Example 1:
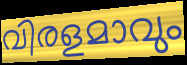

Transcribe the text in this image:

വിരളമാവും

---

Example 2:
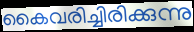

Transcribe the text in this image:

കൈവരിച്ചിരിക്കുന്നു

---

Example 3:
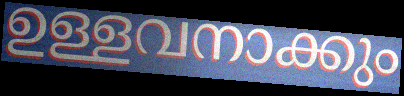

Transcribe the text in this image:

ഉള്ളവനാക്കും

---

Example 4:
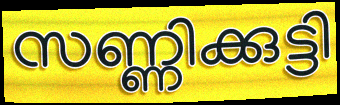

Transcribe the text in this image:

സണ്ണിക്കുട്ടി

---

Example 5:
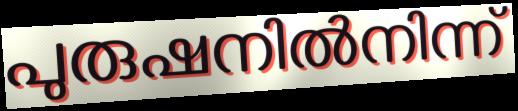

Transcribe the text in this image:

പുരുഷനിൽനിന്ന്